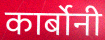
कार्बोनी